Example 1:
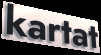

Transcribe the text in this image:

kartat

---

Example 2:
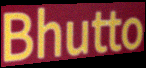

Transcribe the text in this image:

Bhutto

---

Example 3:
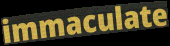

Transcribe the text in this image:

immaculate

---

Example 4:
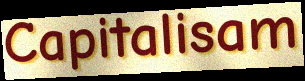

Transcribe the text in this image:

Capitalisam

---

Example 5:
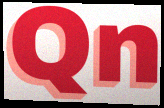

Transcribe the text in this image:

Qn